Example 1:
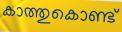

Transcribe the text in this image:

കാത്തുകൊണ്ട്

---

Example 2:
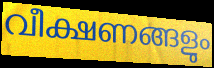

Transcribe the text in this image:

വീക്ഷണങ്ങളും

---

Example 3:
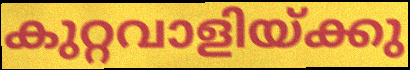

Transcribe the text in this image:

കുറ്റവാളിയ്ക്കു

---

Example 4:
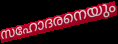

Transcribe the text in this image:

സഹോദരനെയും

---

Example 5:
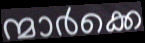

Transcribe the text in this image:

ന്മാർക്കെ